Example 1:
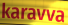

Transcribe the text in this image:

karavva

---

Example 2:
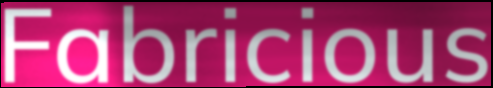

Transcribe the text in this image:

Fabricious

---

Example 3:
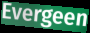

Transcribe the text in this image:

Evergeen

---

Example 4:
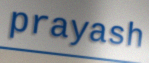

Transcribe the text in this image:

prayash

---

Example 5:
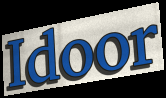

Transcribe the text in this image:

Idoor